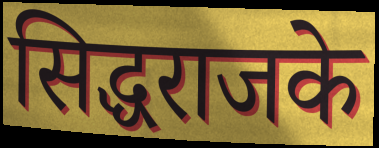
सिद्धराजके